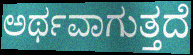
ಅರ್ಥವಾಗುತ್ತದೆ